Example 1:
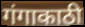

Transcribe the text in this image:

गंगाकाठी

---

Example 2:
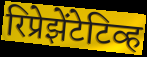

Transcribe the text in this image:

रिप्रेझेंटेटिव्ह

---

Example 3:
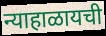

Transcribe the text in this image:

न्याहाळायची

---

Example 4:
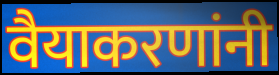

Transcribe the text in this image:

वैयाकरणांनी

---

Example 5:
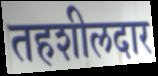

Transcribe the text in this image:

तहशीलदार